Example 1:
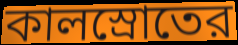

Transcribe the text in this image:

কালস্রোতের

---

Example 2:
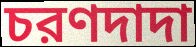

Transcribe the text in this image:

চরণদাদা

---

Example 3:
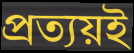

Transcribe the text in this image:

প্রত্যয়ই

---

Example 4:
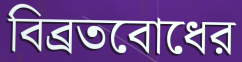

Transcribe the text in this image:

বিব্রতবোধের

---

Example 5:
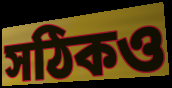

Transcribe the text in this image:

সঠিকও